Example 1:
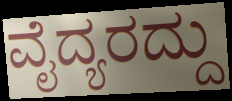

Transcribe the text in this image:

ವೈದ್ಯರದ್ದು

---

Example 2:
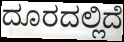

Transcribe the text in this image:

ದೂರದಲ್ಲಿದೆ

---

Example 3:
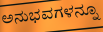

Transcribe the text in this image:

ಅನುಭವಗಳನ್ನೂ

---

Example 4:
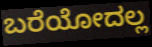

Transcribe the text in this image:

ಬರೆಯೋದಲ್ಲ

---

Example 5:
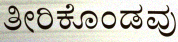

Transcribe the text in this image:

ತೀರಿಕೊಂಡವು